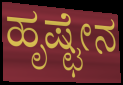
ಹೃಷ್ಟೇನ